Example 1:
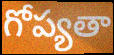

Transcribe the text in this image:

గోప్యతా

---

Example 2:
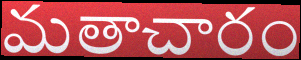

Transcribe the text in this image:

మతాచారం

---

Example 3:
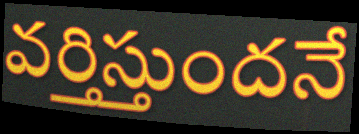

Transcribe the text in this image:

వర్తిస్తుందనే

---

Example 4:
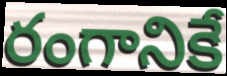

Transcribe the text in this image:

రంగానికే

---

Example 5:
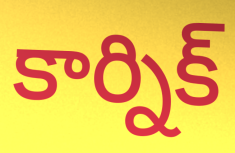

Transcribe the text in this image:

కార్నిక్